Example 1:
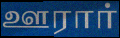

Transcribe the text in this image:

ஊரார்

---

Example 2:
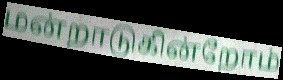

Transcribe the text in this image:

மன்றாடுகின்றோம்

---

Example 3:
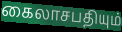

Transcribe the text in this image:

கைலாசபதியும்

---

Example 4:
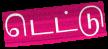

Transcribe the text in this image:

டெட்டு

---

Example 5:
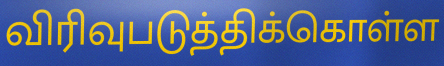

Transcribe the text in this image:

விரிவுபடுத்திக்கொள்ள